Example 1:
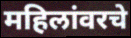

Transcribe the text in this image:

महिलांवरचे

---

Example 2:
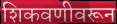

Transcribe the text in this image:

शिकवणीवरून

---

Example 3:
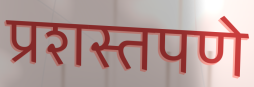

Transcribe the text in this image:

प्रशस्तपणे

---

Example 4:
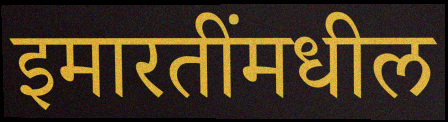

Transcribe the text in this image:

इमारतींमधील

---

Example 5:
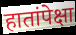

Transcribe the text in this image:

हातांपेक्षा